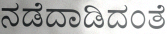
ನಡೆದಾಡಿದಂತೆ